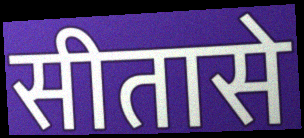
सीतासे